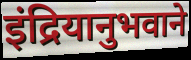
इंद्रियानुभवाने